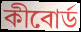
কীবোর্ড